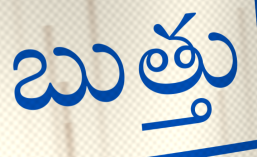
బుత్తు